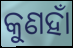
କୁଣହାଁ